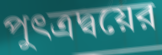
পুৎত্রদ্বয়ের